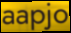
aapjo